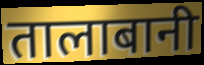
तालाबानी